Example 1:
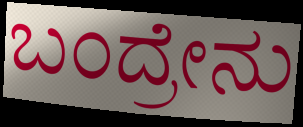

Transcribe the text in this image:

ಬಂದ್ರೇನು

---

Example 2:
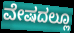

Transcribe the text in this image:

ವೇಷದಲ್ಲೂ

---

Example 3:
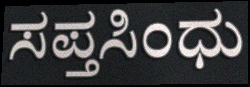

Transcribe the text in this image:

ಸಪ್ತಸಿಂಧು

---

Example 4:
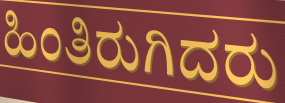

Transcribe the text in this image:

ಹಿಂತಿರುಗಿದರು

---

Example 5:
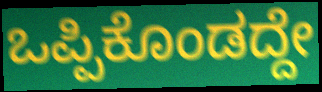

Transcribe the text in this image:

ಒಪ್ಪಿಕೊಂಡದ್ದೇ